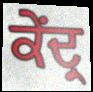
ਕੇਂਦ੍ਰ